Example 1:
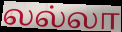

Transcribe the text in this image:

லல்லா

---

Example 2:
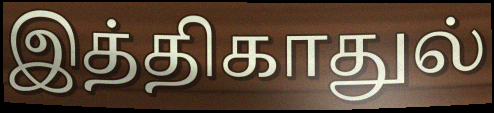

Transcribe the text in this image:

இத்திகாதுல்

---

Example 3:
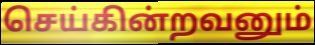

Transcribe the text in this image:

செய்கின்றவனும்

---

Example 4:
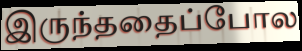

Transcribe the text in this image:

இருந்ததைப்போல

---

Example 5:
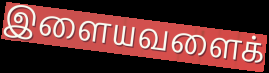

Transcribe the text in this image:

இளையவளைக்